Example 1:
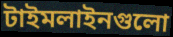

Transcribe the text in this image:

টাইমলাইনগুলো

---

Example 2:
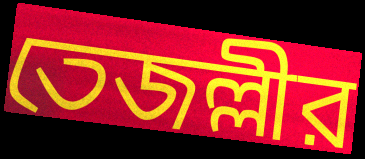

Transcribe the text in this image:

তেজল্লীর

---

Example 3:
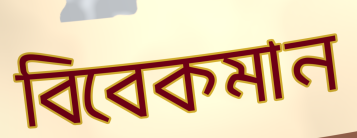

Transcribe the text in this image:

বিবেকমান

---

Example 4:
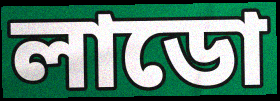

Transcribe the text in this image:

লাডো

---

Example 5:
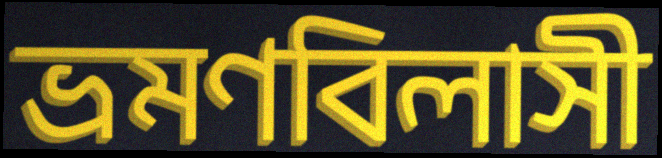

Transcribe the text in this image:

ভ্রমণবিলাসী